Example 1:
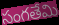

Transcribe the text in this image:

సంగతేమి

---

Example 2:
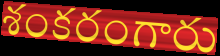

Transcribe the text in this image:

శంకరంగారు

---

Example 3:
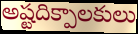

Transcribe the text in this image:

అష్టదిక్పాలకులు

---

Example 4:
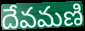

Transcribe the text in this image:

దేవమణి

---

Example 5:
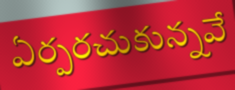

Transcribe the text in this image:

ఏర్పరచుకున్నవే